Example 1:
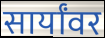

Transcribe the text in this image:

सार्यांवर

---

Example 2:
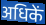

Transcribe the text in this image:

अधिकें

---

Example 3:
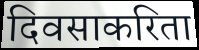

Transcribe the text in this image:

दिवसाकरिता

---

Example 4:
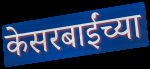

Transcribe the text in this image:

केसरबाईंच्या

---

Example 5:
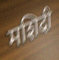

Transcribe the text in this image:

मशिदी